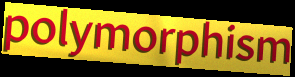
polymorphism